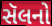
સૅલનો